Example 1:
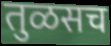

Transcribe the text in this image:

तुळसच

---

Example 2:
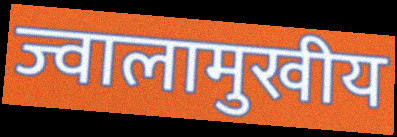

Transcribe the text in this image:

ज्वालामुखीय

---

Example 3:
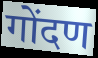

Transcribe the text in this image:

गोंदण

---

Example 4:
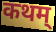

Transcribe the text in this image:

कथम्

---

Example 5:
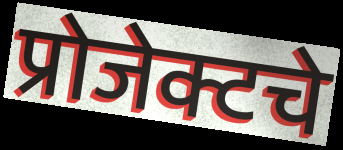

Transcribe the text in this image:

प्रोजेक्टचे